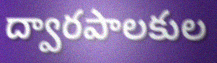
ద్వారపాలకుల